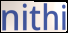
nithi